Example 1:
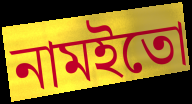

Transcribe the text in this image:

নামইতো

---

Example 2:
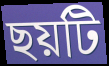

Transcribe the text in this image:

ছয়টি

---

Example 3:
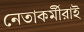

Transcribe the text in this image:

নেতাকর্মীরাই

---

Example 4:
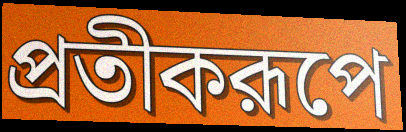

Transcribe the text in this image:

প্রতীকরূপে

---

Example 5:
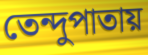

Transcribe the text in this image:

তেন্দুপাতায়